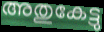
അതുകേട്ടു